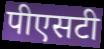
पीएसटी